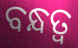
ବନ୍ଧତ୍ୱ